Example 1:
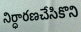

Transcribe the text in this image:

నిర్ధారణచేసికొని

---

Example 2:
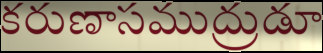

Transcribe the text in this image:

కరుణాసముద్రుడూ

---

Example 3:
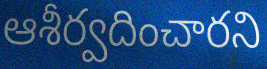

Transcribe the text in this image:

ఆశీర్వదించారని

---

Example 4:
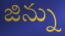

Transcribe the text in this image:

జిన్ను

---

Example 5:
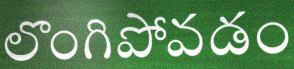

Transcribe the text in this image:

లొంగిపోవడం